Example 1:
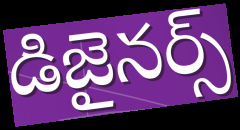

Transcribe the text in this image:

డిజైనర్స్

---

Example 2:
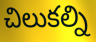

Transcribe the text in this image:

చిలుకల్ని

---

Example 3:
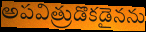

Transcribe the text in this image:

అపవిత్రుడొకడైనను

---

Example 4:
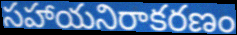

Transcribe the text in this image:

సహాయనిరాకరణం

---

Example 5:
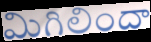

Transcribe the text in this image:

మిగిలిందా